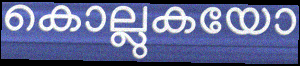
കൊല്ലുകയോ